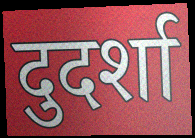
दुदर्शा